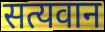
सत्यवान